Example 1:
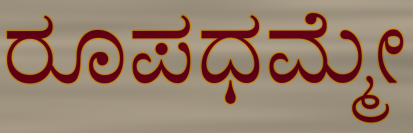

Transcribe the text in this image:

ರೂಪಧಮ್ಮೇ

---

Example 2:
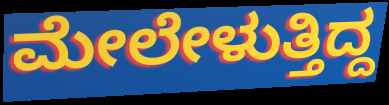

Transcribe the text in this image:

ಮೇಲೇಳುತ್ತಿದ್ದ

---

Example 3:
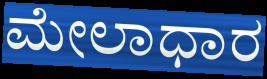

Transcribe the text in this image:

ಮೇಲಾಧಾರ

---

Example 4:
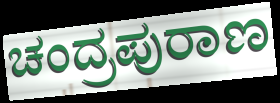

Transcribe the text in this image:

ಚಂದ್ರಪುರಾಣ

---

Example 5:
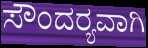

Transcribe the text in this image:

ಸೌಂದರ‍್ಯವಾಗಿ